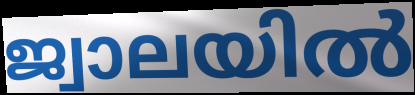
ജ്വാലയിൽ